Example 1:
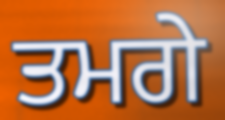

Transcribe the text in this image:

ਤਮਗੇ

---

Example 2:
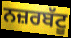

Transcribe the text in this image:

ਨਜ਼ਰਬੱਟੂ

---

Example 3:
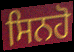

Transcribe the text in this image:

ਸਿਨਹੋ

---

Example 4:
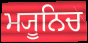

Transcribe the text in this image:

ਮ੍ਯੂਨਿਚ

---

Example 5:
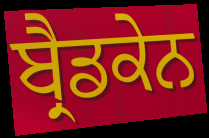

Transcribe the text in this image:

ਬ੍ਰੈਡਕੇਨ